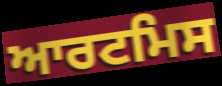
ਆਰਟਮਿਸ